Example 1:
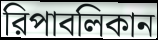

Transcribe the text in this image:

রিপাবলিকান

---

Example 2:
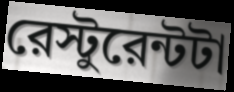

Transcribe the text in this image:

রেস্টুরেন্টটা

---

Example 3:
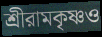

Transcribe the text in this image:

শ্রীরামকৃষ্ণও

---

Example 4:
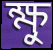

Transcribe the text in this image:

ক্ষু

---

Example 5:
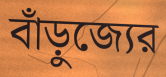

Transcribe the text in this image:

বাঁড়ুজ্যের